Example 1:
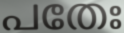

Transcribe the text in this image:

പതേഃ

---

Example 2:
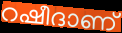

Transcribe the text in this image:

റഷീദാണ്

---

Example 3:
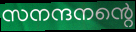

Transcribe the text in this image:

സനന്ദനന്റെ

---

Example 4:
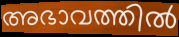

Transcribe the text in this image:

അഭാവത്തിൽ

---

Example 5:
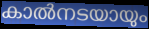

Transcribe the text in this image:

കാൽനടയായും